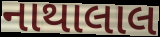
નાથાલાલ